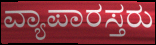
ವ್ಯಾಪಾರಸ್ತರು